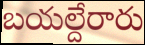
బయల్దేరారు